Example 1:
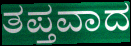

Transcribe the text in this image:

ತಪ್ತವಾದ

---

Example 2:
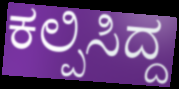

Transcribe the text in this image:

ಕಲ್ಪಿಸಿದ್ದ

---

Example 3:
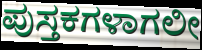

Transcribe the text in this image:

ಪುಸ್ತಕಗಳಾಗಲೀ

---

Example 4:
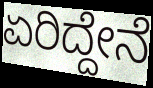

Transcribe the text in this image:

ಏರಿದ್ದೇನೆ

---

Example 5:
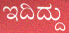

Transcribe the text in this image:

ಇದಿದ್ದು